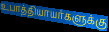
உபாத்தியாயர்களுக்கு